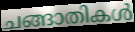
ചങ്ങാതികൾ